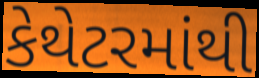
કેથેટરમાંથી